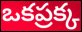
ఒకప్రక్క